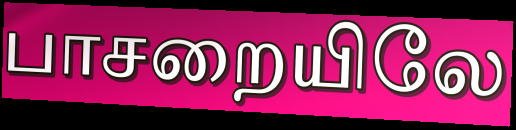
பாசறையிலே